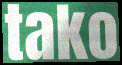
tako